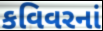
કવિવરનાં